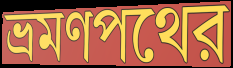
ভ্রমণপথের